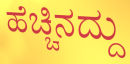
ಹೆಚ್ಚಿನದ್ದು